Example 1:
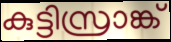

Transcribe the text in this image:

കുട്ടിസ്രാങ്ക്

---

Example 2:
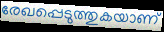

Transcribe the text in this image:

രേഖപ്പെടുത്തുകയാണ്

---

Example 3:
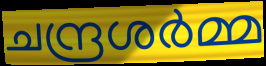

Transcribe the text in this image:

ചന്ദ്രശർമ്മ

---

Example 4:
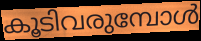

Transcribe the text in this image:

കൂടിവരുമ്പോൾ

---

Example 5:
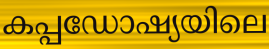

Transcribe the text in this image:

കപ്പഡോഷ്യയിലെ